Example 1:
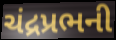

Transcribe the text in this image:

ચંદ્રપ્રભની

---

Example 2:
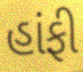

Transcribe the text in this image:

હાંફી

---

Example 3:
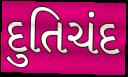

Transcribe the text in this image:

દુતિચંદ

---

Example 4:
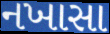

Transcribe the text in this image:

નખાસા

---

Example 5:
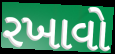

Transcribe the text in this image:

રખાવો